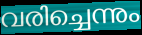
വരിച്ചെന്നും